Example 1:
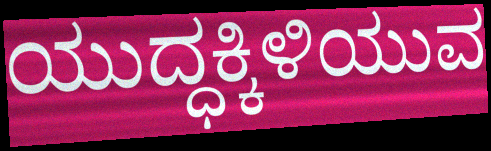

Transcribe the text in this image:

ಯುದ್ಧಕ್ಕಿಳಿಯುವ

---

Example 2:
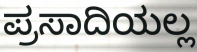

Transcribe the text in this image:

ಪ್ರಸಾದಿಯಲ್ಲ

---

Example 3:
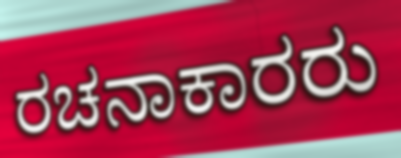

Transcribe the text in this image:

ರಚನಾಕಾರರು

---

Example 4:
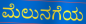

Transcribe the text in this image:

ಮೆಲುನಗೆಯ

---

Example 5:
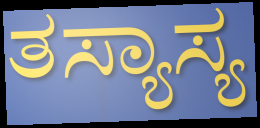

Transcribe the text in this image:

ತಸ್ಯಾಸ್ಯ